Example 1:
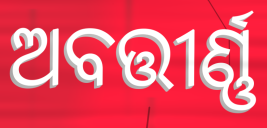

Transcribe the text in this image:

ଅବତ୍ତୀର୍ଣ୍ଣ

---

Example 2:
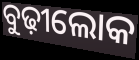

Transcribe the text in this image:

ବୁଢ଼ୀଲୋକ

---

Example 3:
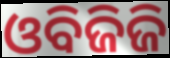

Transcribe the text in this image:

ଓବିଜିଜି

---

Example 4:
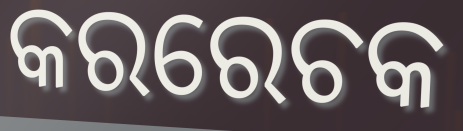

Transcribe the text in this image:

କରରେଚକ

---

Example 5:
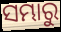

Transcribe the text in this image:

ସମ୍ଭାରୁ